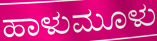
ಹಾಳುಮೂಳು